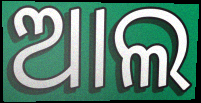
ଆଲ